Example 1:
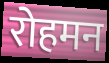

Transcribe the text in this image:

रोहमन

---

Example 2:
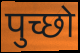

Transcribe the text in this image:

पुच्छो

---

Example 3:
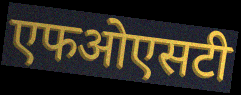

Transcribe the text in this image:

एफओएसटी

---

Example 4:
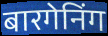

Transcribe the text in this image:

बारगेनिंग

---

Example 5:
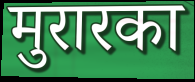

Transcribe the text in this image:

मुरारका